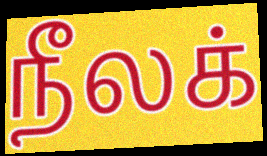
நீலக்